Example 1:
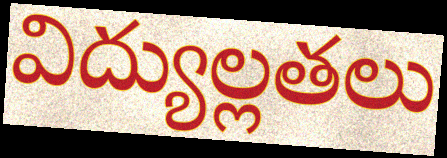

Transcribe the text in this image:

విద్యుల్లతలు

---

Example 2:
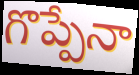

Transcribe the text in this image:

గొప్పేనా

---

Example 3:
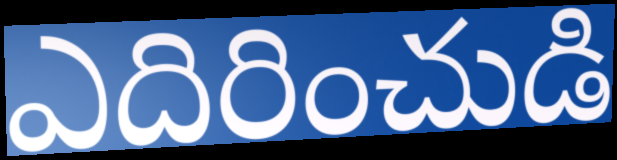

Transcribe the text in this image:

ఎదిరించుడి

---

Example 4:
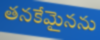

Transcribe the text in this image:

తనకేమైనను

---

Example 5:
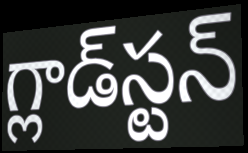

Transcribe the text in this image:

గ్లాడ్‌స్టన్